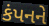
કંપનને